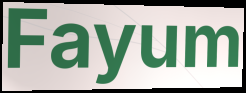
Fayum